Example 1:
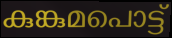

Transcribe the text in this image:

കുങ്കുമപൊട്ട്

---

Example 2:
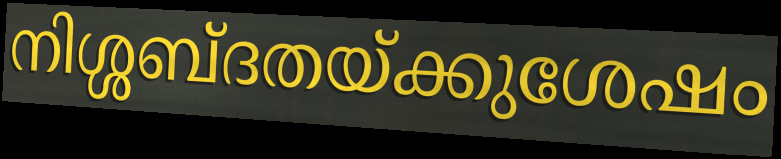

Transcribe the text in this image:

നിശ്ശബ്ദതയ്ക്കുശേഷം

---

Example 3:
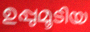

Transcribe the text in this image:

ഉപ്പുമൂടിയ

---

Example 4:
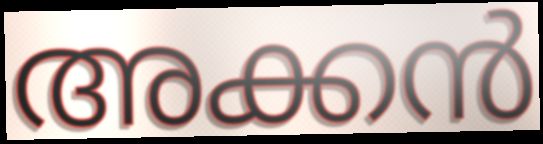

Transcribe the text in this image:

അക്കൻ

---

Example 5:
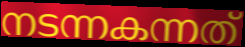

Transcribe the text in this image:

നടന്നകന്നത്